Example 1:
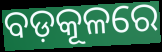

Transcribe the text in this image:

ବଡ଼କୂଳରେ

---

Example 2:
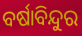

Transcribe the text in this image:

ବର୍ଷାବିନ୍ଦୁର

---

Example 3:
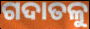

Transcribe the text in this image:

ଗଦାତଳୁ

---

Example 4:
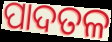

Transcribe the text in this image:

ପାଦତଳ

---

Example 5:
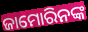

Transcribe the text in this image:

ଜାମୋରିନଙ୍କ